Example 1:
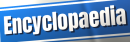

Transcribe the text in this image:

Encyclopaedia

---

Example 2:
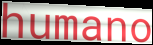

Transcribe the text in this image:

humano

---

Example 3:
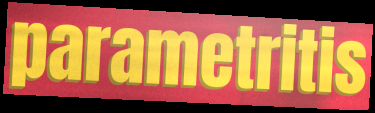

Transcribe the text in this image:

parametritis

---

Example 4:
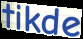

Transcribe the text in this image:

tikde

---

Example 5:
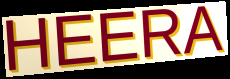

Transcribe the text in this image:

HEERA